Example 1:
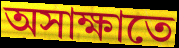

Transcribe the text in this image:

অসাক্ষাতে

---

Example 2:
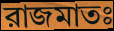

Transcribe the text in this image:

রাজমাতঃ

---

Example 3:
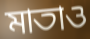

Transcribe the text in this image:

মাতাও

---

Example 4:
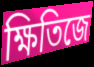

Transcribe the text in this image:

ক্ষিতিজে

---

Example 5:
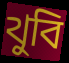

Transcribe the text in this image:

থুবি